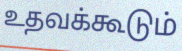
உதவக்கூடும்